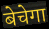
बेचेगा